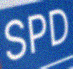
SPD